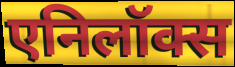
एनिलॉक्स